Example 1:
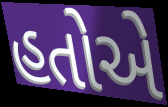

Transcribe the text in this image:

હતોએ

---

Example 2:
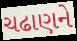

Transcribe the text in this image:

ચઢાણને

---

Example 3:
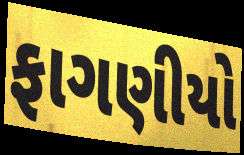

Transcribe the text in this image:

ફાગણીયો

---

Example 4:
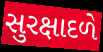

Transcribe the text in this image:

સુરક્ષાદળે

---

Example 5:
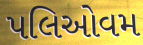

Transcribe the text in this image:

પલિઓવમ